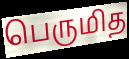
பெருமித